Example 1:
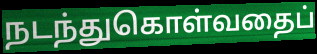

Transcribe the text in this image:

நடந்துகொள்வதைப்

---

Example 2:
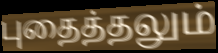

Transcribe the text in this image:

புதைத்தலும்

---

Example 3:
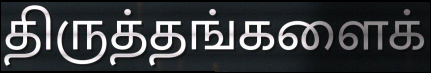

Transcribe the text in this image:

திருத்தங்களைக்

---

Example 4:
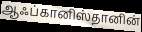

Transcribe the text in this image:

ஆஃப்கானிஸ்தானின்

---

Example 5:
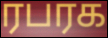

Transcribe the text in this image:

ரபரக